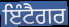
ਇੰਟੈਗਰ